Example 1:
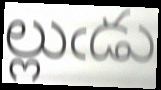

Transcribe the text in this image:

ల్లుఁడు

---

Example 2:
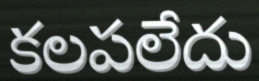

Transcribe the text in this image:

కలపలేదు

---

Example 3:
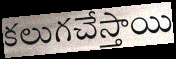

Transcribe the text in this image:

కలుగచేస్తాయి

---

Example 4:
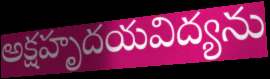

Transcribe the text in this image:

అక్షహృదయవిద్యను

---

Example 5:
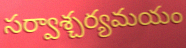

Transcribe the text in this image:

సర్వాశ్చర్యమయం